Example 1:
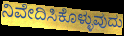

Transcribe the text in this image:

ನಿವೇದಿಸಿಕೊಳ್ಳುವುದು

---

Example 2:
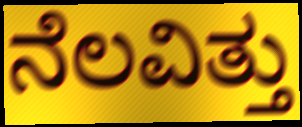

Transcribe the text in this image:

ನೆಲವಿತ್ತು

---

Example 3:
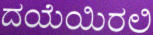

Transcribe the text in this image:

ದಯೆಯಿರಲಿ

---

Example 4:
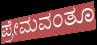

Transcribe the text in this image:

ಪ್ರೇಮವಂತೂ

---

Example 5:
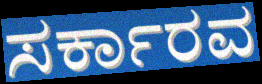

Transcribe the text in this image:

ಸರ್ಕಾರವ